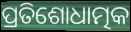
ପ୍ରତିଶୋଧାତ୍ମକ